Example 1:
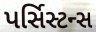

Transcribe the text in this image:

પર્સિસ્ટન્સ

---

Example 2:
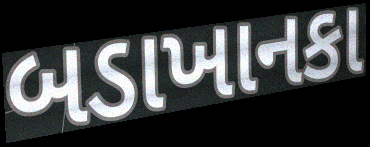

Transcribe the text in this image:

બડાખાનકા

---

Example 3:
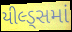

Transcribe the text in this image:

યીલ્ડ્સમાં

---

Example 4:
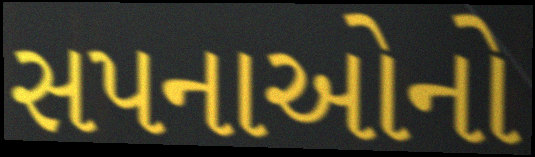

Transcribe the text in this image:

સપનાઓનો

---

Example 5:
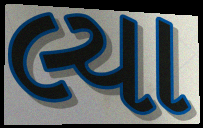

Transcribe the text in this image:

લ્યા